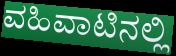
ವಹಿವಾಟಿನಲ್ಲಿ